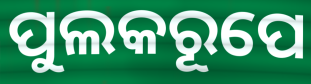
ପୁଲକରୂପେ